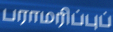
பராமரிப்புப்